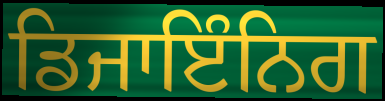
ਡਿਜਾਇੰਨਿਗ